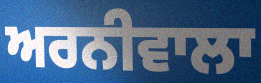
ਅਰਨੀਵਾਲਾ